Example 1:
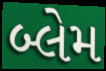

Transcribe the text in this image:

બ્લેમ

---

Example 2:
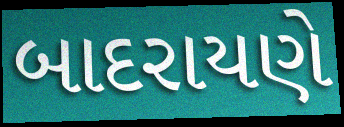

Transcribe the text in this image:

બાદરાયણે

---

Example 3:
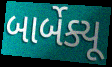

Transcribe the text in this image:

બાર્બેક્યૂ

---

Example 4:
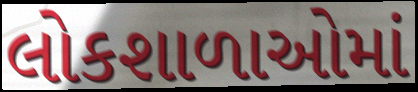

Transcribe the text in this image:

લોકશાળાઓમાં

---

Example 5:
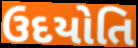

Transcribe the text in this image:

ઉદયોતિ